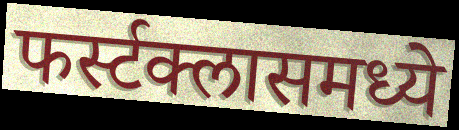
फर्स्टक्लासमध्ये